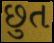
છુત